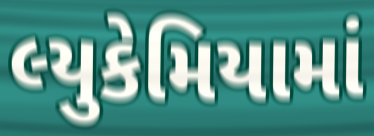
લ્યુકેમિયામાં